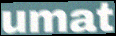
umat